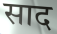
साद